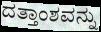
ದತ್ತಾಂಶವನ್ನು